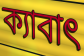
ক্যাবাৎ